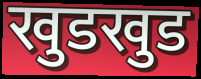
खुडखुड